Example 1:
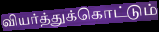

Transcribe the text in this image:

வியர்த்துக்கொட்டும்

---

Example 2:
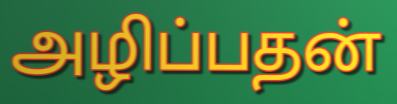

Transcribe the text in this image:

அழிப்பதன்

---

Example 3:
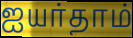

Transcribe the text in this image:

ஐயர்தாம்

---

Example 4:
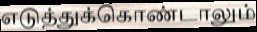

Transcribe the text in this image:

எடுத்துக்கொண்டாலும்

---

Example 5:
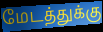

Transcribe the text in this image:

மேடத்துக்கு